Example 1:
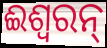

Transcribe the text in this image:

ଈଶ୍ୱରନ୍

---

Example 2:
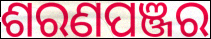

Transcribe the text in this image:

ଶରଣପଞ୍ଜର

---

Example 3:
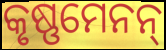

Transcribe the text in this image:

କୃଷ୍ଣମେନନ୍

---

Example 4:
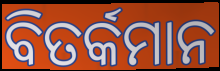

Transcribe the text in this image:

ବିତର୍କମାନ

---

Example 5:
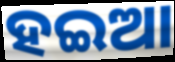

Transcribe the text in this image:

ହଇଆ